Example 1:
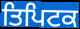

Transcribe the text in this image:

ਤਿਪਿਟਕ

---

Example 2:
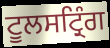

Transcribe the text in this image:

ਟੂਲਸਟ੍ਰਿੰਗ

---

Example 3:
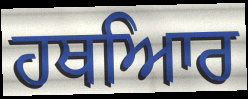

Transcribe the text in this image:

ਹਥਆਿਰ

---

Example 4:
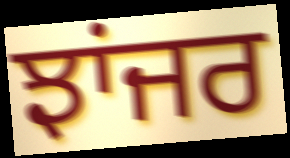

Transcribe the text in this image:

ਝਾਂਜਰ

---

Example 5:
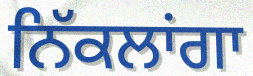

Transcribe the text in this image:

ਨਿੱਕਲਾਂਗਾ